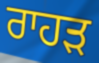
ਰਾਹੜ